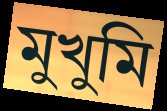
মুখুমি